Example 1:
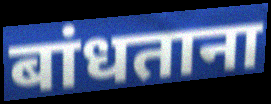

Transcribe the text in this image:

बांधताना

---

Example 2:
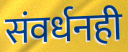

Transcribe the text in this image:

संवर्धनही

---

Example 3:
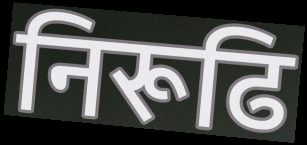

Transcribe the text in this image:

निरूढि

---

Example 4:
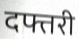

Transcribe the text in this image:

दफ्तरी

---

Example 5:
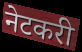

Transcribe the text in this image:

नेटकरी